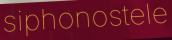
siphonostele